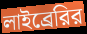
লাইব্রেরির